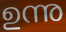
ഉന്നു